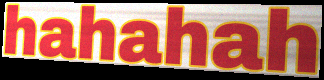
hahahah